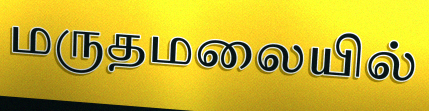
மருதமலையில்